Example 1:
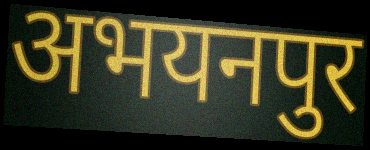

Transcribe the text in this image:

अभयनपुर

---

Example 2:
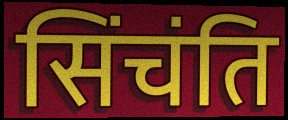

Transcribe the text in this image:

सिंचंति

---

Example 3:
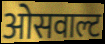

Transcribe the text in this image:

ओसवाल्ट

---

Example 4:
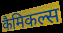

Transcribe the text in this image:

कैमिकल्स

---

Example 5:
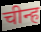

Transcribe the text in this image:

चीन्ह